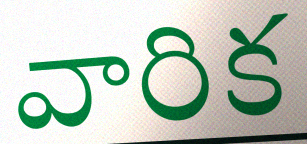
వారిక